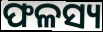
ଫଳସ୍ୟ